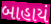
બાહાયં